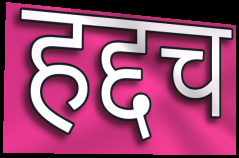
हद्दच